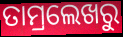
ତାମ୍ରଲେଖରୁ